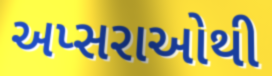
અપ્સરાઓથી